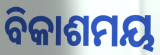
ବିକାଶମୟ